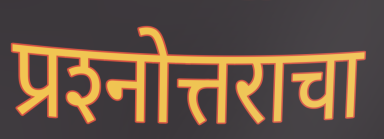
प्रश्‍नोत्तराचा